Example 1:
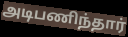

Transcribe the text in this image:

அடிபணிந்தார்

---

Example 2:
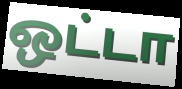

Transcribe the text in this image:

ஒட்டா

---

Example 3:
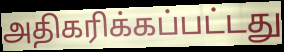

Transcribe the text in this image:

அதிகரிக்கப்பட்டது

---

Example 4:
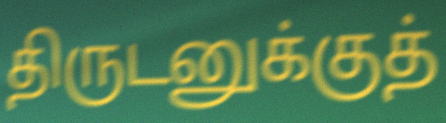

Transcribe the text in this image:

திருடனுக்குத்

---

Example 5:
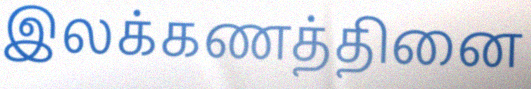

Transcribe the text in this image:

இலக்கணத்தினை